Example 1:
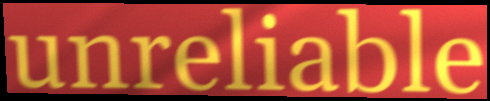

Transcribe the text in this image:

unreliable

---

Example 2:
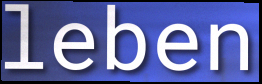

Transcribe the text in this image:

leben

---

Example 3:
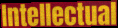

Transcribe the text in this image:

Intellectual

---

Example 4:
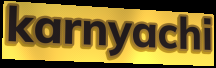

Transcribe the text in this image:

karnyachi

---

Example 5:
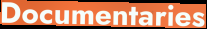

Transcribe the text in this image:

Documentaries